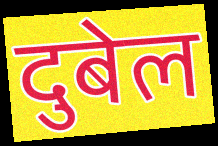
दुबेल